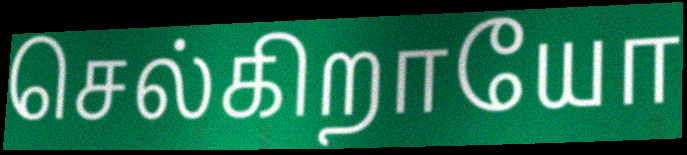
செல்கிறாயோ